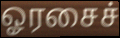
ஓரசைச்